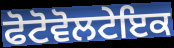
ਫੋਟੋਵੋਲਟੇਇਕ